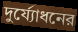
দুর্য্যোধনের